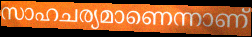
സാഹചര്യമാണെന്നാണ്